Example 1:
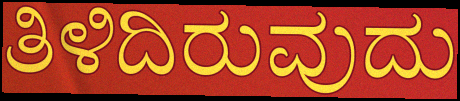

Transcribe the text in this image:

ತಿಳಿದಿರುವುದು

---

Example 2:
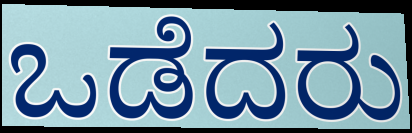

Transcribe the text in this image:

ಒಡೆದರು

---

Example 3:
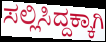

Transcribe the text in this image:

ಸಲ್ಲಿಸಿದ್ದಕ್ಕಾಗಿ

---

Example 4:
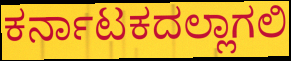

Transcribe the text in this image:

ಕರ್ನಾಟಕದಲ್ಲಾಗಲಿ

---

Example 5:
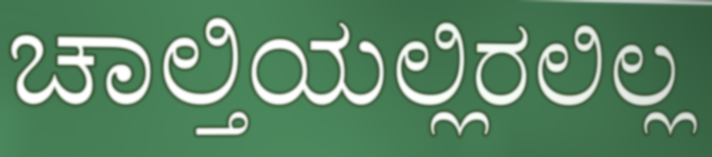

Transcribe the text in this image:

ಚಾಲ್ತಿಯಲ್ಲಿರಲಿಲ್ಲ